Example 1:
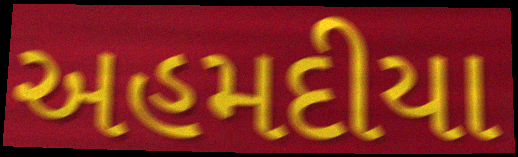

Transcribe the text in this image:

અહમદીયા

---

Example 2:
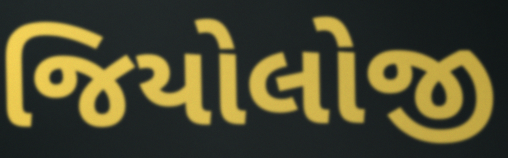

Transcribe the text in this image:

જિયોલોજી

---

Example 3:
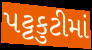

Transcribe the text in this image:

પટ્ટકુટીમાં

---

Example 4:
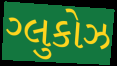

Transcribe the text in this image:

ગ્લુકોઝ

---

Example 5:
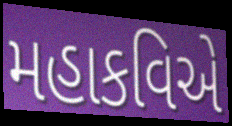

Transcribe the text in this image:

મહાકવિએ